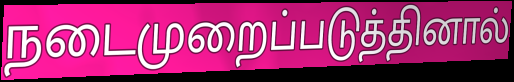
நடைமுறைப்படுத்தினால்